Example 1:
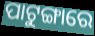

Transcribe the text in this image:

ପାଟୁଙ୍ଗାରେ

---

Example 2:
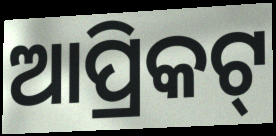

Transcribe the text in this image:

ଆପ୍ରିକଟ୍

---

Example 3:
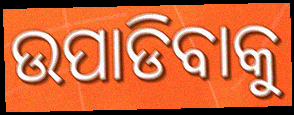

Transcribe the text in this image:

ଉପାଡିବାକୁ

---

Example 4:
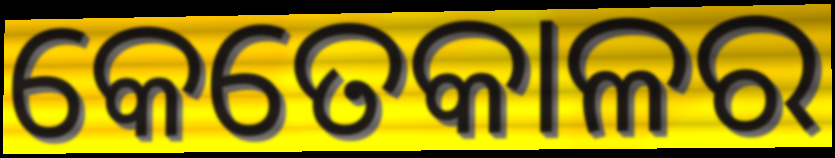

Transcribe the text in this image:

କେତେକାଳର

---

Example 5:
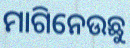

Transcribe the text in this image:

ମାଗିନେଉଛୁ